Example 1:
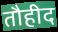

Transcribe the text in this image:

तौह़ीद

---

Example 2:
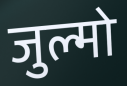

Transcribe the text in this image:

जुल्मो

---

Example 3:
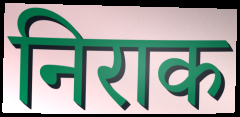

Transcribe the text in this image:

निराक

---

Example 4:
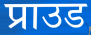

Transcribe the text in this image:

प्राउड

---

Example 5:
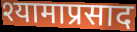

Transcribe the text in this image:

श्यामाप्रसाद